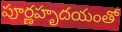
పూర్ణహృదయంతో